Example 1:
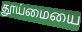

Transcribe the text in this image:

தூய்மையை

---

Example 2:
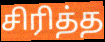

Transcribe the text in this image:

சிரித்த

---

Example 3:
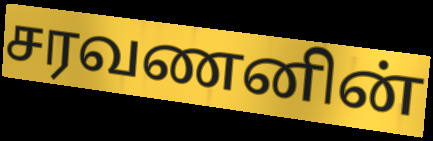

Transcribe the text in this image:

சரவணனின்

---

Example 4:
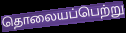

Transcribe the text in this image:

தொலையப்பெற்று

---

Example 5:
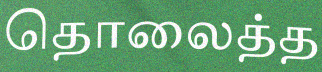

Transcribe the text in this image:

தொலைத்த